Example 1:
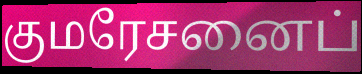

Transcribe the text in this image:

குமரேசனைப்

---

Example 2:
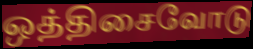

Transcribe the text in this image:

ஒத்திசைவோடு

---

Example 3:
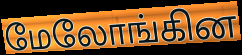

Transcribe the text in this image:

மேலோங்கின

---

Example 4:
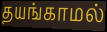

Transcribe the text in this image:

தயங்காமல்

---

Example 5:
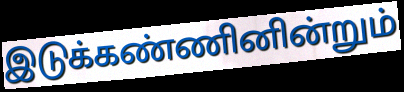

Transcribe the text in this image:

இடுக்கண்ணினின்றும்